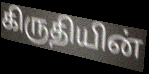
கிருதியின்